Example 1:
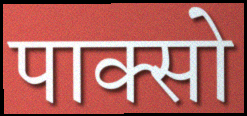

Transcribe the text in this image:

पाक्सो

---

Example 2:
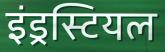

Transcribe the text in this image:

इंड्रस्टियल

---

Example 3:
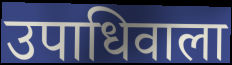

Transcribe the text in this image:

उपाधिवाला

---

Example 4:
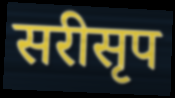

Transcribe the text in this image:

सरीसृप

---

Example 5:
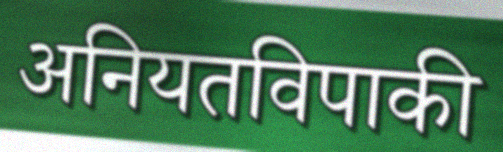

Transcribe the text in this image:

अनियतविपाकी